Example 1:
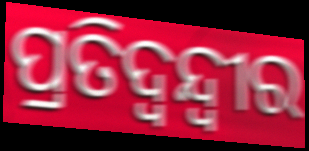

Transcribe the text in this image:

ପ୍ରତିଦ୍ବନ୍ଦ୍ବୀର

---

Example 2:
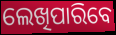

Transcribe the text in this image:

ଲେଖିପାରିବେ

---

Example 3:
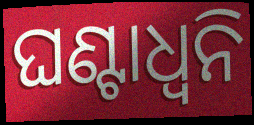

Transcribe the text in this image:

ଘଣ୍ଟାଧ୍ୱନି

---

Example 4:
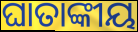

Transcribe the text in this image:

ଘାତାଙ୍କୀୟ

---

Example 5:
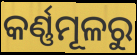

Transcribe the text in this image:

କର୍ଣ୍ଣମୂଳରୁ